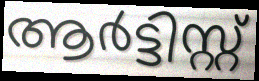
ആർട്ടിസ്റ്റ്